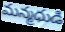
మన్మధుడి